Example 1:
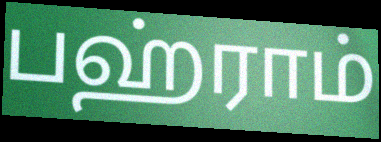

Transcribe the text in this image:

பஹ்ராம்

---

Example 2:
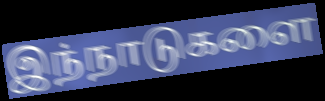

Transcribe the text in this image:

இந்நாடுகளை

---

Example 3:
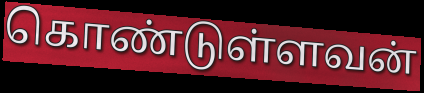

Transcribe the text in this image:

கொண்டுள்ளவன்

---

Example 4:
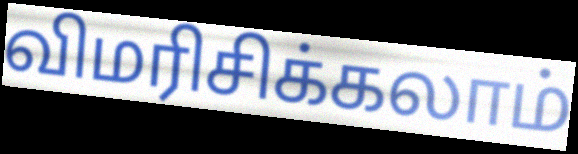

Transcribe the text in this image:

விமரிசிக்கலாம்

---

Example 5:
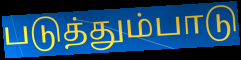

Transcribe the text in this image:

படுத்தும்பாடு